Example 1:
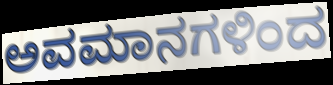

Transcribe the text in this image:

ಅವಮಾನಗಳಿಂದ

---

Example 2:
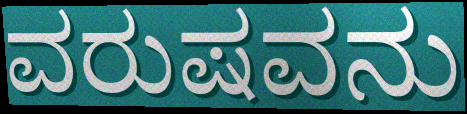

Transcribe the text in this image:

ವರುಷವನು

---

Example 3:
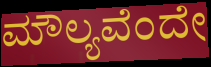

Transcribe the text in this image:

ಮೌಲ್ಯವೆಂದೇ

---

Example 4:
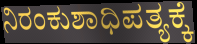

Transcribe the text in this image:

ನಿರಂಕುಶಾಧಿಪತ್ಯಕ್ಕೆ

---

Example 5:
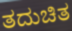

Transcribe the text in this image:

ತದುಚಿತ